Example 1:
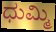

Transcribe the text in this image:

ಧುಮ್ಮಿ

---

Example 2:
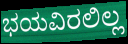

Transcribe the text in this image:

ಭಯವಿರಲಿಲ್ಲ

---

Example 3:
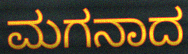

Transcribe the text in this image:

ಮಗನಾದ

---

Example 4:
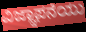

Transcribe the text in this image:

ವಿಜ್ಞಾಪನೆಯು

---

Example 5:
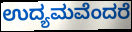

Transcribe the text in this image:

ಉದ್ಯಮವೆಂದರೆ